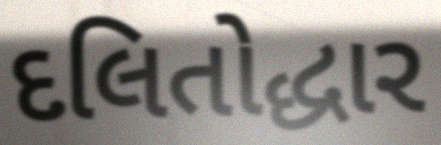
દલિતોદ્ધાર